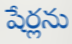
షేర్లను